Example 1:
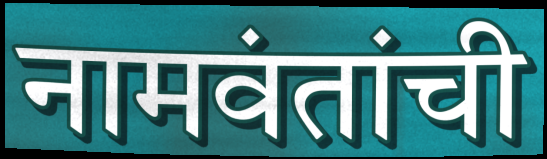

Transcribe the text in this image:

नामवंतांची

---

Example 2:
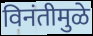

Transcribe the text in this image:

विनंतीमुळे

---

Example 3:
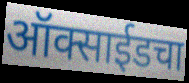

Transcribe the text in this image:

ऑक्साईडचा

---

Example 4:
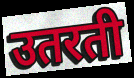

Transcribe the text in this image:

उतरती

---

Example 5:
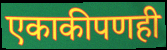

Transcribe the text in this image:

एकाकीपणही